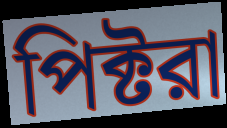
পিক্টরা